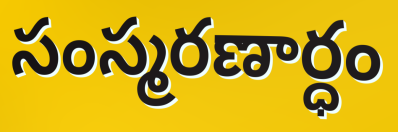
సంస్మరణార్ధం